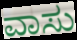
ವಾಸು